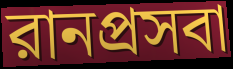
রানপ্রসবা